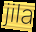
jila